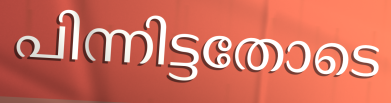
പിന്നിട്ടതോടെ